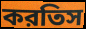
করতিস